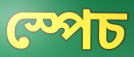
স্পেচ